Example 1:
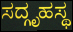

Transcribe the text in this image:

ಸದ್ಗೃಹಸ್ಥ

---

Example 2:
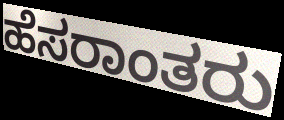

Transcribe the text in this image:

ಹೆಸರಾಂತರು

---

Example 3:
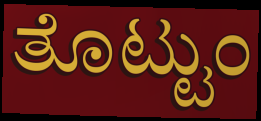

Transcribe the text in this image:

ತೊಟ್ಟುಂ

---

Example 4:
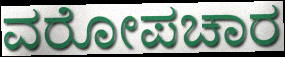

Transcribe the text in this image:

ವರೋಪಚಾರ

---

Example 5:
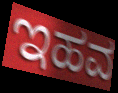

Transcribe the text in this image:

ಇಹವ